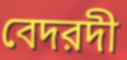
বেদরদী